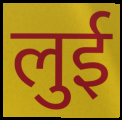
लुई